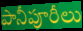
పానీపూరీలు